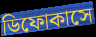
ডিফোকাসে